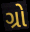
ગ્રો